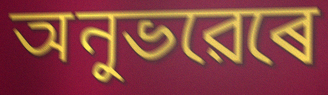
অনুভৱেৰে